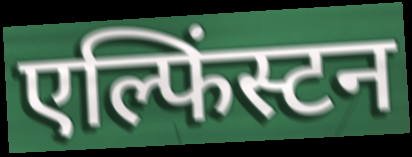
एल्फिंस्टन